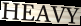
HEAVY